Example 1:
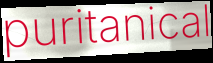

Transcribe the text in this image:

puritanical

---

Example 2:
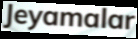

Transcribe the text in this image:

Jeyamalar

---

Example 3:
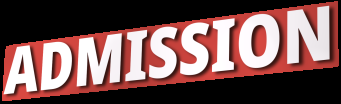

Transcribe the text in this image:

ADMISSION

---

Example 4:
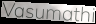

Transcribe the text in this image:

Vasumathi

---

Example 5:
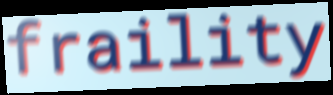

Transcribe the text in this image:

fraility